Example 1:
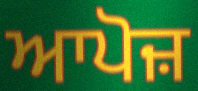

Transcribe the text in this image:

ਆਪੋਜ਼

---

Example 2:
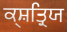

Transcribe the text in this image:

ਕ੍ਸ਼ਤ੍ਰਿਯ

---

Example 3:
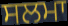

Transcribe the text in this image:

ਸਲਮਾ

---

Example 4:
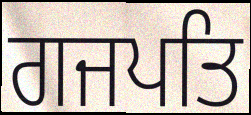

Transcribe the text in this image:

ਗਜਪਤਿ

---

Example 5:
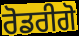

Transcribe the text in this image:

ਰੋਡਰੀਗੋ